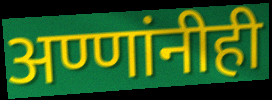
अण्णांनीही